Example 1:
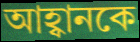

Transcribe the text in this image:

আহ্বানকে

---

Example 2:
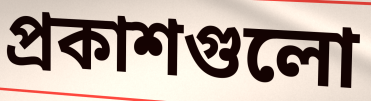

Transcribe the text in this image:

প্রকাশগুলো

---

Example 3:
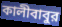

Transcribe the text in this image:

কালীবাবুর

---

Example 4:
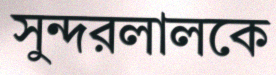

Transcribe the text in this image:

সুন্দরলালকে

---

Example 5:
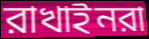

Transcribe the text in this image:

রাখাইনরা